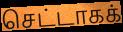
செட்டாகக்